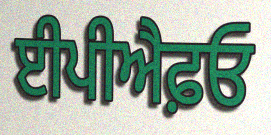
ਈਪੀਐਫ਼ਓ